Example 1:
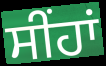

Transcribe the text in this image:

ਸੀਂਹਾਂ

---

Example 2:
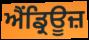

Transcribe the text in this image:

ਐਂਡ੍ਰਿਊਜ਼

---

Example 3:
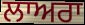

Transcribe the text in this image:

ਲਾਅਰਾ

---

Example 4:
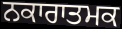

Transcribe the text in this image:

ਨਕਾਰਾਤਮਕ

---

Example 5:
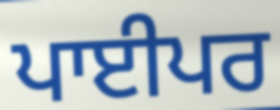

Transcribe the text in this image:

ਪਾਈਪਰ